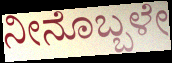
ನೀನೊಬ್ಬಳೇ